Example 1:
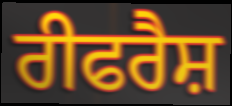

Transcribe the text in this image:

ਰੀਫਰੈਸ਼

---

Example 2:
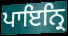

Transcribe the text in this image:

ਪਾਇਨ੍ਰਿ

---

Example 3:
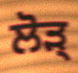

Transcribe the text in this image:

ਲੋੜ੍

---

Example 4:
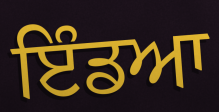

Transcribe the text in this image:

ਇੰਡਆ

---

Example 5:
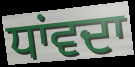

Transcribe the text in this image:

ਧਾਂਵਦਾ